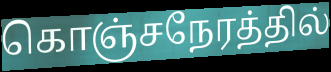
கொஞ்சநேரத்தில்